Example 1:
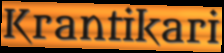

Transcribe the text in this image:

Krantikari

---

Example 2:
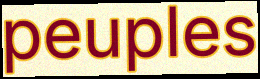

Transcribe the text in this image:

peuples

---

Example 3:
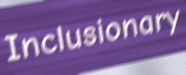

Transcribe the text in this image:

Inclusionary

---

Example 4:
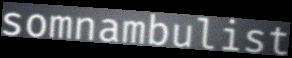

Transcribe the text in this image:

somnambulist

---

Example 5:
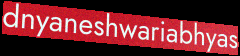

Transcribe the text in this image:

dnyaneshwariabhyas